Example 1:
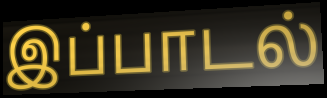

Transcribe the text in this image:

இப்பாடல்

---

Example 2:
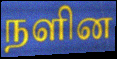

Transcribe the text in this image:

நளின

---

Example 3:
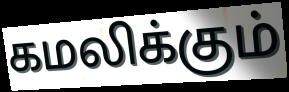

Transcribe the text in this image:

கமலிக்கும்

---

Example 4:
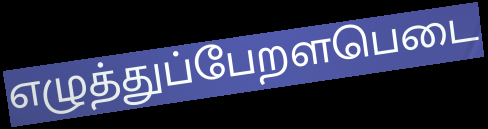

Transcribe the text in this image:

எழுத்துப்பேறளபெடை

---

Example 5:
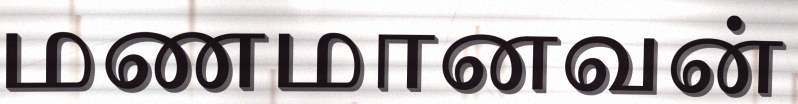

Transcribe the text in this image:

மணமானவன்